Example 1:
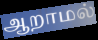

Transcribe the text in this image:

ஆறாமல்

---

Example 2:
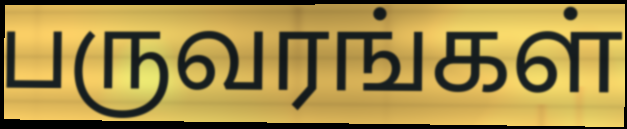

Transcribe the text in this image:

பருவரங்கள்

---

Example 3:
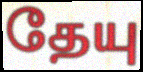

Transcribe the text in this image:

தேயு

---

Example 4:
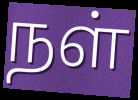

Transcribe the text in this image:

நள்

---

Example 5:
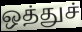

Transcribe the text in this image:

ஒத்துச்